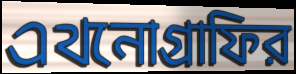
এথনোগ্রাফির